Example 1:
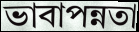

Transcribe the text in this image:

ভাবাপন্নতা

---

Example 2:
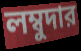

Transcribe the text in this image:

লম্বুদার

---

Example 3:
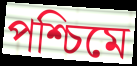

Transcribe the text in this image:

পশ্চিমে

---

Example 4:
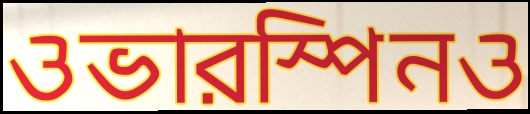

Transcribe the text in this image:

ওভারস্পিনও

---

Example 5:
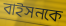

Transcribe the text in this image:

বাইসনকে